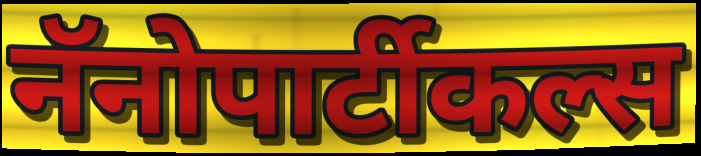
नॅनोपार्टीकल्स